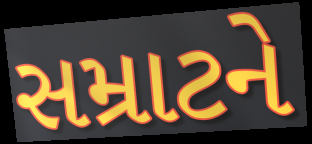
સમ્રાટને